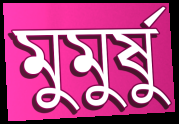
মুমুর্ষু